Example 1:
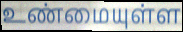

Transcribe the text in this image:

உண்மையுள்ள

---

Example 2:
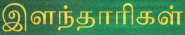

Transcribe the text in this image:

இளந்தாரிகள்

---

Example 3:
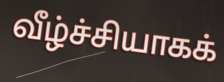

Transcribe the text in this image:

வீழ்ச்சியாகக்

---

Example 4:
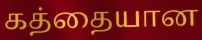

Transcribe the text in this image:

கத்தையான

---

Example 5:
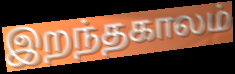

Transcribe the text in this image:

இறந்தகாலம்